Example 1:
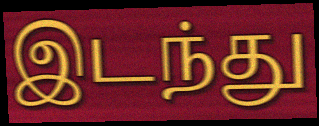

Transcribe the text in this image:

இடந்து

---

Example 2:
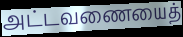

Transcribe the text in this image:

அட்டவணையைத்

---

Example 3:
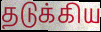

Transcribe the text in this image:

தடுக்கிய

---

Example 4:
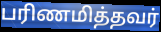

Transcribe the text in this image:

பரிணமித்தவர்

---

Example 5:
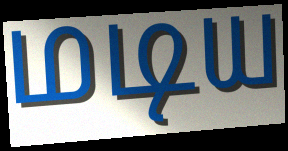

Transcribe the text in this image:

மடிய